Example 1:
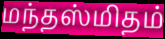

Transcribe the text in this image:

மந்தஸ்மிதம்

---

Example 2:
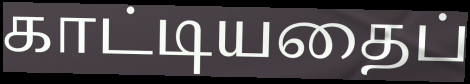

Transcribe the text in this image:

காட்டியதைப்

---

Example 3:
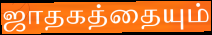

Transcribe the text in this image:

ஜாதகத்தையும்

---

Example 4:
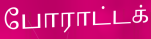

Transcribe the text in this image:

போராட்டக்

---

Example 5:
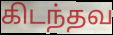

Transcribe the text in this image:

கிடந்தவ